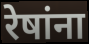
रेषांना